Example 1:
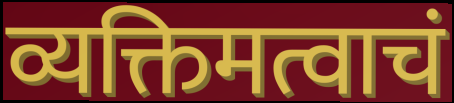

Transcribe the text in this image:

व्यक्तिमत्वाचं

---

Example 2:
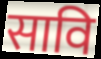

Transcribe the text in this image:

सावि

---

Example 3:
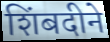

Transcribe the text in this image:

शिंबदीने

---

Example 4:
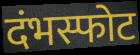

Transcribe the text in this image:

दंभस्फोट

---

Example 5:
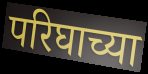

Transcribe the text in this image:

परिघाच्या